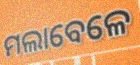
ମଲାବେଳେ